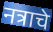
नत्राचे